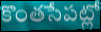
కొంతసేపట్లో